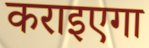
कराइएगा